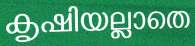
കൃഷിയല്ലാതെ